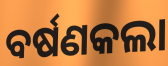
ବର୍ଷଣକଲା